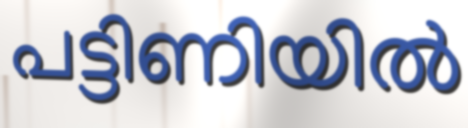
പട്ടിണിയിൽ